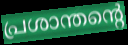
പ്രശാന്തന്റെ